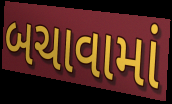
બચાવામાં